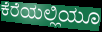
ಕೆರೆಯಲ್ಲಿಯೂ